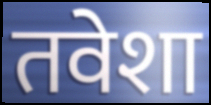
तवेशा